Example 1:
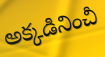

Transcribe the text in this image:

అక్కడినించీ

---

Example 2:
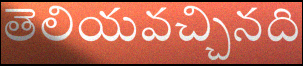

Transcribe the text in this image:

తెలియవచ్చినది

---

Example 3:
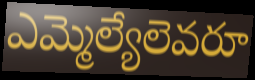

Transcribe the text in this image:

ఎమ్మెల్యేలెవరూ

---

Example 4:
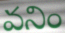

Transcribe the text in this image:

వనిం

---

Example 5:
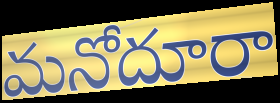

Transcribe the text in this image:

మనోదూరా